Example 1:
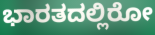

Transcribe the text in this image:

ಭಾರತದಲ್ಲಿರೋ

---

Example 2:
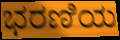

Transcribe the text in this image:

ಭರಣಿಯ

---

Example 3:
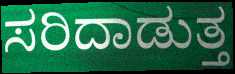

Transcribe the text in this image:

ಸರಿದಾಡುತ್ತ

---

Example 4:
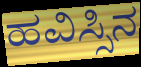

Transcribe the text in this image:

ಹವಿಸ್ಸಿನ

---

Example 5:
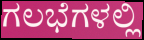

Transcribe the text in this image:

ಗಲಭೆಗಳಲ್ಲಿ